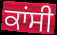
ਕਾਂਸੀ